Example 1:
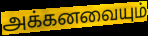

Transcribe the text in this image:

அக்கனவையும்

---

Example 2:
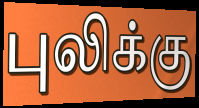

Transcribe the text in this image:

புலிக்கு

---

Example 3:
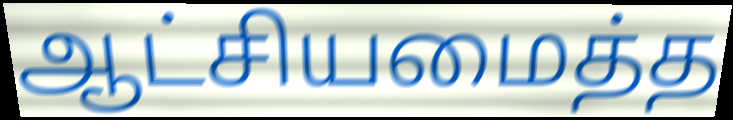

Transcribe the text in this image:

ஆட்சியமைத்த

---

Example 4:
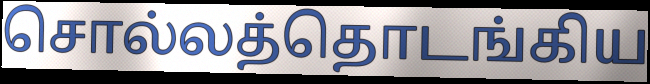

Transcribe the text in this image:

சொல்லத்தொடங்கிய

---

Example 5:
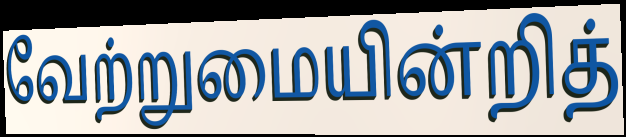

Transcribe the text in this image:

வேற்றுமையின்றித்